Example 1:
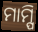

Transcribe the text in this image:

ମାମ୍ପି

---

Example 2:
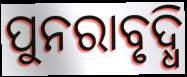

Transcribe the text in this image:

ପୁନରାବୃଦ୍ଧି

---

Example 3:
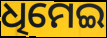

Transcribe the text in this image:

ଧିମେଇ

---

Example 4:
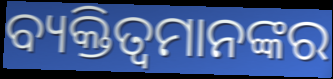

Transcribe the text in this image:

ବ୍ୟକ୍ତିତ୍ୱମାନଙ୍କର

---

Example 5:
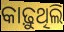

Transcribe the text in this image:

କାଢ଼ୁଥିଲି